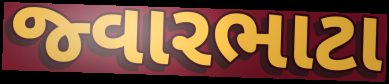
જ્વારભાટા